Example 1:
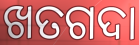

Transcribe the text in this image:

ଖତଗଦା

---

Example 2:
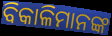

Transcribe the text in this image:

ବିକାଳିମାନଙ୍କ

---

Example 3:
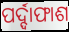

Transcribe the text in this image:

ପର୍ଦ୍ଦାଫାଶ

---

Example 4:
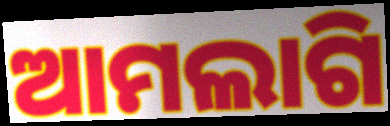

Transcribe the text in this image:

ଆମଲାଗି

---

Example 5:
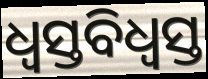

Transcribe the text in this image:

ଧ୍ୱସ୍ତବିଧ୍ୱସ୍ତ